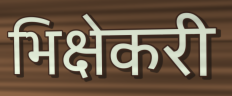
भिक्षेकरी